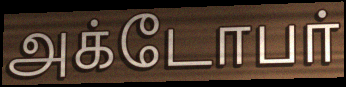
அக்டோபர்